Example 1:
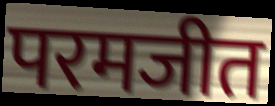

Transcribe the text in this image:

परमजीत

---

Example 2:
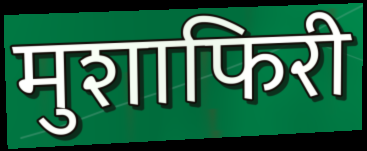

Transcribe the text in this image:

मुशाफिरी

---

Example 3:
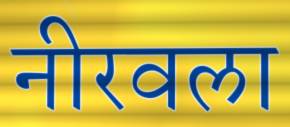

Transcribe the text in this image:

नीरवला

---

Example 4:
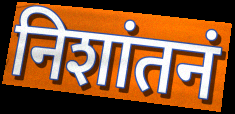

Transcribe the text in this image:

निशांतनं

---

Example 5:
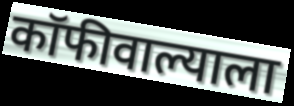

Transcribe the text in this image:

कॉफीवाल्याला